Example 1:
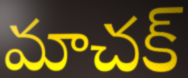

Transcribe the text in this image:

మాచక్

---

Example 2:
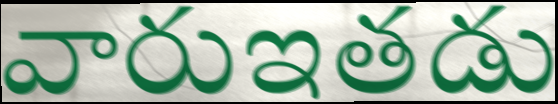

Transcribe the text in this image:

వారుఇతడు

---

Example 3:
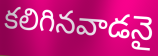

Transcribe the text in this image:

కలిగినవాడనై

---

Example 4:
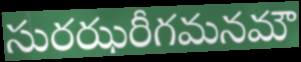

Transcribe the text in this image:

సురఝరీగమనమౌ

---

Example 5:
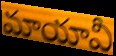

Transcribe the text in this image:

మాయావీ